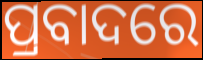
ପ୍ରବାଦରେ